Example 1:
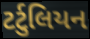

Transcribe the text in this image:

ટર્ટુલિયન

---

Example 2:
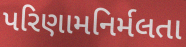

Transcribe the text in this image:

પરિણામનિર્મલતા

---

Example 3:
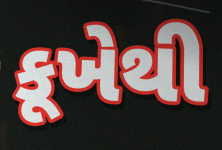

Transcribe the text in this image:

કૂખેથી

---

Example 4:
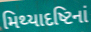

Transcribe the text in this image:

મિથ્યાદષ્ટિનાં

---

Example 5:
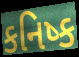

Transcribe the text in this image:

કનિષ્ક